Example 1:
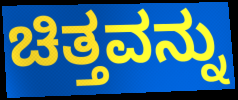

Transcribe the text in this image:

ಚಿತ್ತವನ್ನು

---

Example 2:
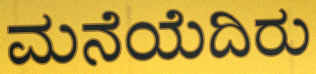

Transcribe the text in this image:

ಮನೆಯೆದಿರು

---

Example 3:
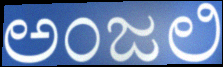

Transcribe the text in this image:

ಅಂಜಲಿ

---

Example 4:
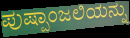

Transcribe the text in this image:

ಪುಷ್ಪಾಂಜಲಿಯನ್ನು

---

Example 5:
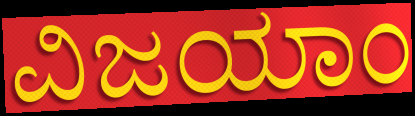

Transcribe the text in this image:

ವಿಜಯಾಂ